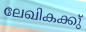
ലേഖികക്കു്